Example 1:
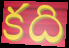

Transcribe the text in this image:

కది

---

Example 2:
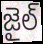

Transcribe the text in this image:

జైల్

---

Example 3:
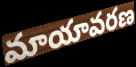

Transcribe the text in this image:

మాయావరణ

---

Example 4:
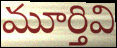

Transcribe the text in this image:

మూర్తివి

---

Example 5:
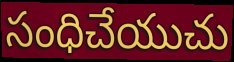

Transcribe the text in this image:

సంధిచేయుచు